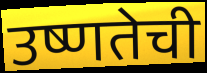
उष्णतेची